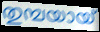
തുമ്പയായ്